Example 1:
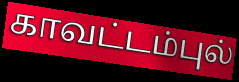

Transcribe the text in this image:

காவட்டம்புல்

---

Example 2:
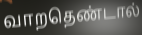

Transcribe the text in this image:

வாறதெண்டால்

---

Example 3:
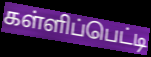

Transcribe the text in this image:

கள்ளிப்பெட்டி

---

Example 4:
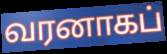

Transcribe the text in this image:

வரனாகப்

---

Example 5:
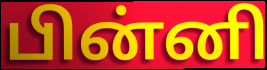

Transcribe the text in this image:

பின்னி